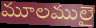
మూలములై